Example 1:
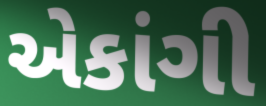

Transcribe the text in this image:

એકાંગી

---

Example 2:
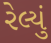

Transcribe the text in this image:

રેલ્યું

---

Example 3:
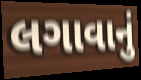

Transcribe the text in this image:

લગાવાનું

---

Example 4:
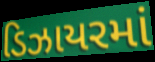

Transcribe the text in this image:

ડિઝાયરમાં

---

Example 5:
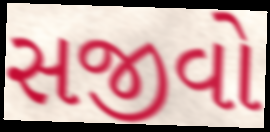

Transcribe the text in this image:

સજીવો